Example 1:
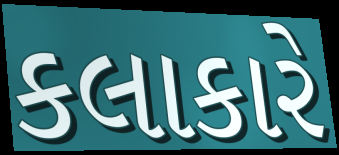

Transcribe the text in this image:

કલાકારે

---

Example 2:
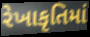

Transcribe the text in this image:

રેખાકૃતિમાં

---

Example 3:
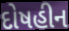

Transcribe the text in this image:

દોષહીન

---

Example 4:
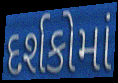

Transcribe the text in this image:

દર્શકોમાં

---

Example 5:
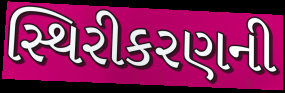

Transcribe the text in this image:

સ્થિરીકરણની